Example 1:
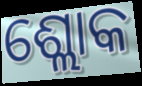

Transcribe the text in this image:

ଶ୍ଲୋକ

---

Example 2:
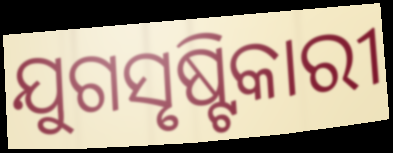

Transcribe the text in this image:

ଯୁଗସୃଷ୍ଟିକାରୀ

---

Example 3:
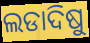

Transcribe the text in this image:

ଲଡାଦିଷୁ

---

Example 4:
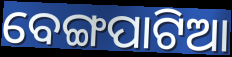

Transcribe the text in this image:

ବେଙ୍ଗପାଟିଆ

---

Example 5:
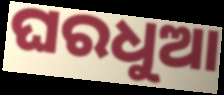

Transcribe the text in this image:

ଘରଧୁଆ